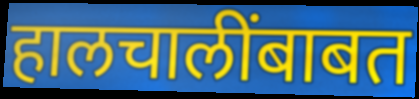
हालचालींबाबत